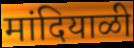
मांदियाळी